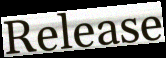
Release